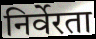
निर्वेरता